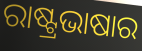
ରାଷ୍ଟ୍ରଭାଷାର